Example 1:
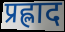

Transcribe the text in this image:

प्रह्लाद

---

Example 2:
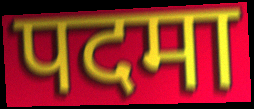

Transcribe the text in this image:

पदमा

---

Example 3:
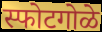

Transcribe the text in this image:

स्फोटगोळे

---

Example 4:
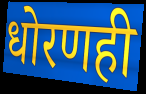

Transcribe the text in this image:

धोरणही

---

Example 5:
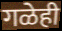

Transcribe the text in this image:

गळेही